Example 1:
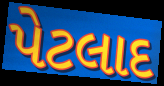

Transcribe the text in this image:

પેટલાદ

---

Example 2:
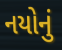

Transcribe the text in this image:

નયોનું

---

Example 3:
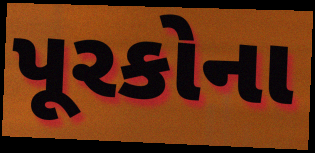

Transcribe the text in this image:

પૂરકોના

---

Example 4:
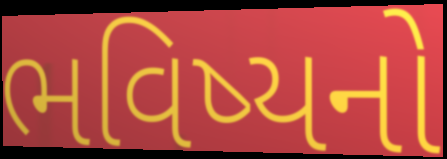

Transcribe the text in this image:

ભવિષ્યનો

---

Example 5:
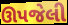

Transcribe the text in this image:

ઊપજેલી